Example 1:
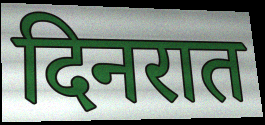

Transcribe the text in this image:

दिनरात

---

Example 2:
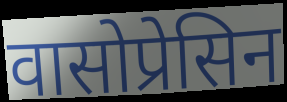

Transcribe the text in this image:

वासोप्रेसिन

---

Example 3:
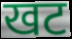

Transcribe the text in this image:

खट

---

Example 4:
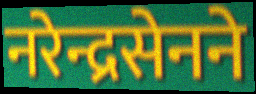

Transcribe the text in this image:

नरेन्द्रसेनने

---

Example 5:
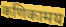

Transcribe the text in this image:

कणिकामय